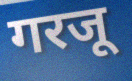
गरजू